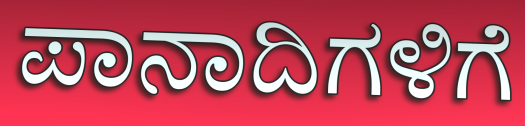
ಪಾನಾದಿಗಳಿಗೆ